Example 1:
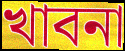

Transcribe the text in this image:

খাবনা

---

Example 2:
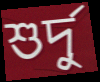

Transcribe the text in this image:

শুর্দু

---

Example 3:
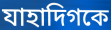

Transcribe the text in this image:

যাহাদিগকে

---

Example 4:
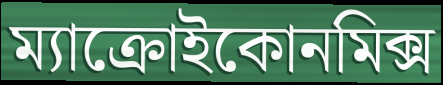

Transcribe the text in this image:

ম্যাক্রোইকোনমিক্স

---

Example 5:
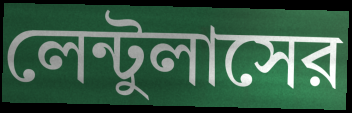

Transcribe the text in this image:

লেন্টুলাসের